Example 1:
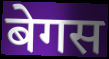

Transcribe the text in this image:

बेगस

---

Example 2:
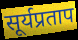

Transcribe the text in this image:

सूर्यप्रताप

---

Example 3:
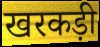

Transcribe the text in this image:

खरकड़ी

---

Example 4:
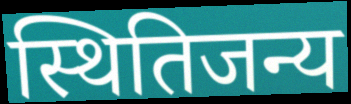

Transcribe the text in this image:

स्थितिजन्य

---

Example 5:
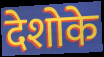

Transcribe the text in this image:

देशोके